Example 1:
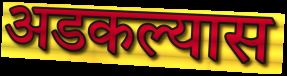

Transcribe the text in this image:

अडकल्यास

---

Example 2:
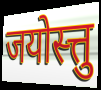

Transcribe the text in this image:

जयोस्त्तु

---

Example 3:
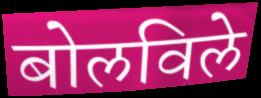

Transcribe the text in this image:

बोलविले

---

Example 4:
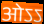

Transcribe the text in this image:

ओऽऽ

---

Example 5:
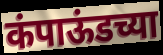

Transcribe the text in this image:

कंपाऊंडच्या